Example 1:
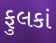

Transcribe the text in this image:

ફુલકાં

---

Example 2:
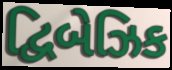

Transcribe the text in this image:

દ્વિબેઝિક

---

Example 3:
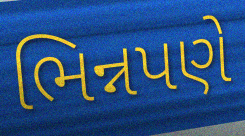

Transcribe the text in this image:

ભિન્નપણે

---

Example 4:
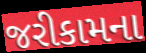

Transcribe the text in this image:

જરીકામના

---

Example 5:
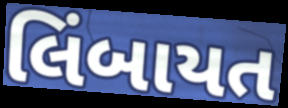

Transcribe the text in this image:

લિંબાયત